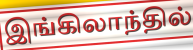
இங்கிலாந்தில்